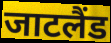
जाटलैंड